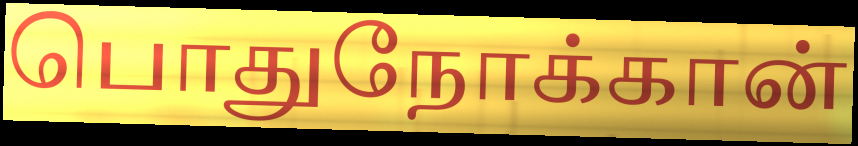
பொதுநோக்கான்